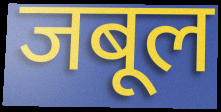
जबूल